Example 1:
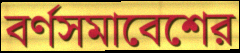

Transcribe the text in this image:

বর্ণসমাবেশের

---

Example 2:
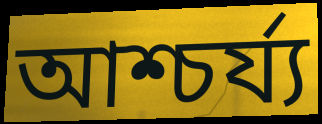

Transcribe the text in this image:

আশ্চর্য্য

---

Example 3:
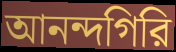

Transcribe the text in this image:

আনন্দগিরি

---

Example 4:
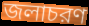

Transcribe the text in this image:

জলাচরণ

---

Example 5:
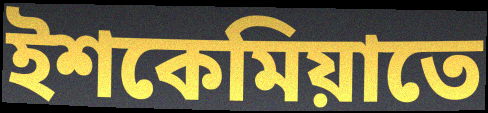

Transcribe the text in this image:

ইশকেমিয়াতে